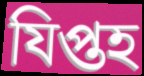
যিপ্তহ